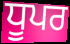
ਧੂਪਰ